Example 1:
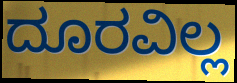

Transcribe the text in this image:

ದೂರವಿಲ್ಲ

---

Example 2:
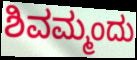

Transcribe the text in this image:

ಶಿವಮ್ಮಂದು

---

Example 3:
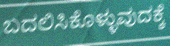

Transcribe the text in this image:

ಬದಲಿಸಿಕೊಳ್ಳುವುದಕ್ಕೆ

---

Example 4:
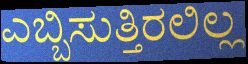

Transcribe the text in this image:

ಎಬ್ಬಿಸುತ್ತಿರಲಿಲ್ಲ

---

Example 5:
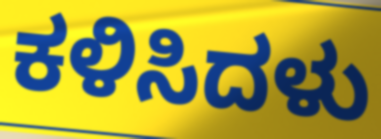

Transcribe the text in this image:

ಕಳಿಸಿದಳು